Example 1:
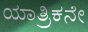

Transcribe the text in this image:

ಯಾತ್ರಿಕನೇ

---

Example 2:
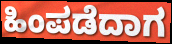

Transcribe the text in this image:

ಹಿಂಪಡೆದಾಗ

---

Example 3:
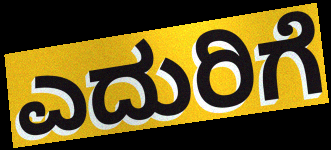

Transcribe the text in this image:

ಎದುರಿಗೆ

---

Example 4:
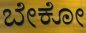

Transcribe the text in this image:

ಬೇಕೋ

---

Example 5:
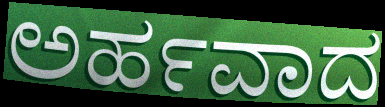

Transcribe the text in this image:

ಅರ್ಹವಾದ